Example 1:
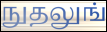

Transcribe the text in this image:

நுதலுங்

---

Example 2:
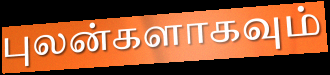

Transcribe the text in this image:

புலன்களாகவும்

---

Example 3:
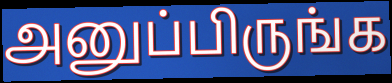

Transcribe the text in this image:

அனுப்பிருங்க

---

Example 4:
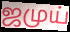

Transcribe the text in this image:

ஜமுய்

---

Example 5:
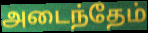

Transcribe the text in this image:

அடைந்தேம்